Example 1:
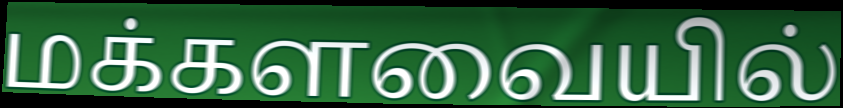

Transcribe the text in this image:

மக்களவையில்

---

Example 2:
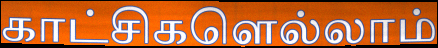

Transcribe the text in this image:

காட்சிகளெல்லாம்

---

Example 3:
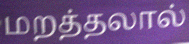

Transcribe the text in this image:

மறத்தலால்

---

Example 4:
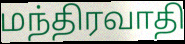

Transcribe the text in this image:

மந்திரவாதி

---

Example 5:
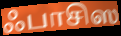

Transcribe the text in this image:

ஃபாசிஸ